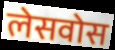
लेसवोस